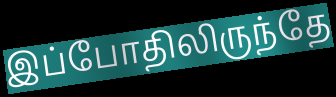
இப்போதிலிருந்தே